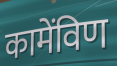
कामेंविण